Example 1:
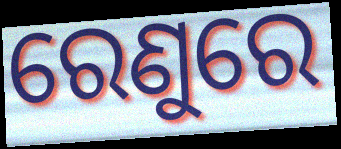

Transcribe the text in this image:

ରେଣୁରେ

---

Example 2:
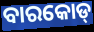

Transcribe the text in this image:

ବାରକୋଡ୍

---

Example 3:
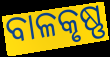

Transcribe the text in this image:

ବାଳକୃଷ୍ଣ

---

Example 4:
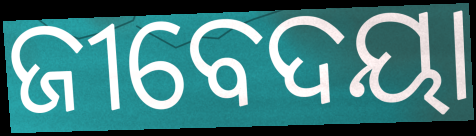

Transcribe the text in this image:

ଜୀବେଦୟା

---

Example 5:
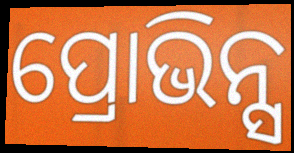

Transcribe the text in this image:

ପ୍ରୋଭିନ୍ସ